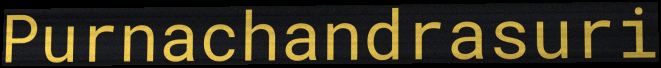
Purnachandrasuri